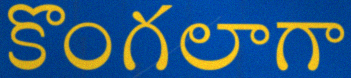
కొంగలాగా